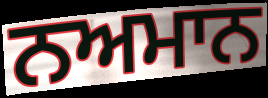
ਨਅਮਾਨ